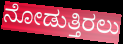
ನೋಡುತ್ತಿರಲು